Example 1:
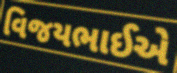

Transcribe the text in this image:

વિજયભાઈએ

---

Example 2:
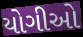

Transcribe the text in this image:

યોગીઓ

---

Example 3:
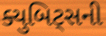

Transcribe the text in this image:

ક્યુબિટ્સની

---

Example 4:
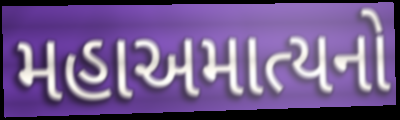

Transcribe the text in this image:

મહાઅમાત્યનો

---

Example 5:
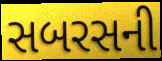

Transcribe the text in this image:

સબરસની